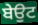
ਬੇਉਟ